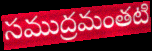
సముద్రమంతటి